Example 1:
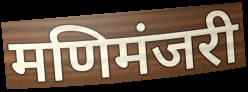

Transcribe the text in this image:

मणिमंजरी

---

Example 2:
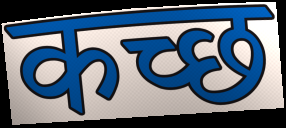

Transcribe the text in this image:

कच्‍छ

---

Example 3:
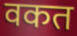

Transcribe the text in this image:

वकत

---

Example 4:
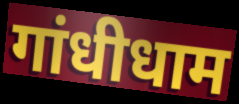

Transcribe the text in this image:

गांधीधाम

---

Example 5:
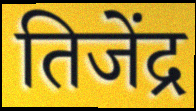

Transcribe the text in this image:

तिजेंद्र